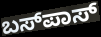
ಬಸ್‍ಪಾಸ್